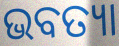
ଭବତ୍ୟା